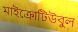
মাইক্রোটিউবুল